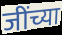
जींच्या